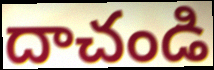
దాచండి